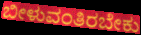
ಬೀಳುವಂತಿರಬೇಕು